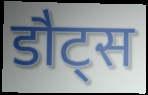
डौट्स